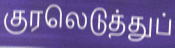
குரலெடுத்துப்